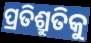
ପ୍ରତିଶ୍ରୁତିକୁ